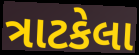
ત્રાટકેલા